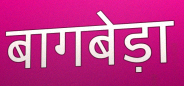
बागबेड़ा